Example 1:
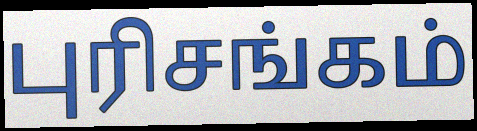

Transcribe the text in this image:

புரிசங்கம்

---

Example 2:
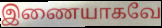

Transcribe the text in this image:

இணையாகவே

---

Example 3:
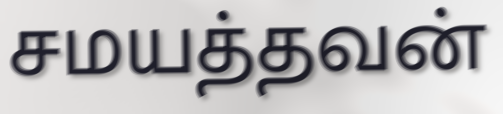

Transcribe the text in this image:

சமயத்தவன்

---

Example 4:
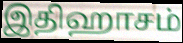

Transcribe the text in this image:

இதிஹாசம்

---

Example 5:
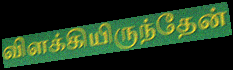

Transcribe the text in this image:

விளக்கியிருந்தேன்